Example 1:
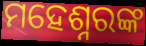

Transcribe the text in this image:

ମହେଶ୍ନରଙ୍କ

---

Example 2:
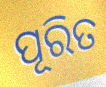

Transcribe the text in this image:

ପୂରିତ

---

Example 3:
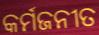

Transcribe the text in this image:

କର୍ମଜନୀତ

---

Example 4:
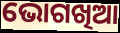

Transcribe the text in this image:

ଭୋଗଖିଆ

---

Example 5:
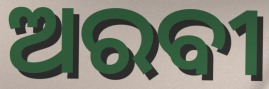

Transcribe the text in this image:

ଅରବୀ